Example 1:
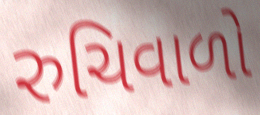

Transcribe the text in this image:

રુચિવાળો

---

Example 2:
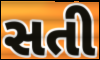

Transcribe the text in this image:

સતી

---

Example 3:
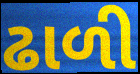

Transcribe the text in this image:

ઢાળી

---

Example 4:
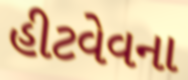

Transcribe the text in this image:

હીટવેવના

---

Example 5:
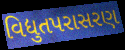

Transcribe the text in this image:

વિદ્યુતપરાસરણ